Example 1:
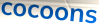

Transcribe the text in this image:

cocoons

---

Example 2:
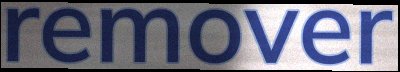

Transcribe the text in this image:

remover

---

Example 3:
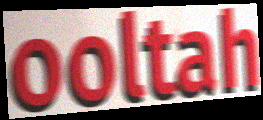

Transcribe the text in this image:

ooltah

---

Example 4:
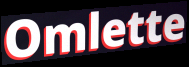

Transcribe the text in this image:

Omlette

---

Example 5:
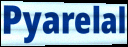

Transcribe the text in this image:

Pyarelal